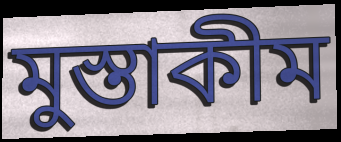
মুস্তাকীম